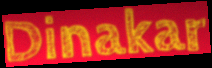
Dinakar